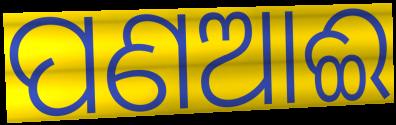
ପଣଆଈ